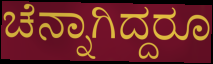
ಚೆನ್ನಾಗಿದ್ದರೂ